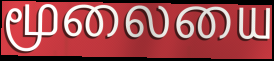
மூலையை